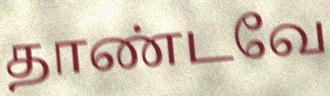
தாண்டவே